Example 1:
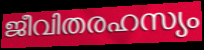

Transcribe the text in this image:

ജീവിതരഹസ്യം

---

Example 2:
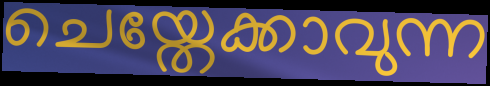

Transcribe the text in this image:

ചെയ്തേക്കാവുന്ന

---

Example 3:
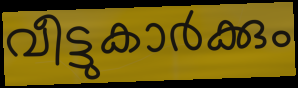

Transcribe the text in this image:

വീട്ടുകാർക്കും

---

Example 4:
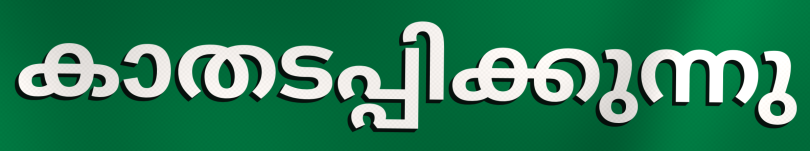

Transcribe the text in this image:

കാതടപ്പിക്കുന്നു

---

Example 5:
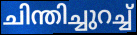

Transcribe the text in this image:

ചിന്തിച്ചുറച്ച്